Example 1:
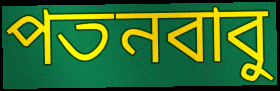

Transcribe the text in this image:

পতনবাবু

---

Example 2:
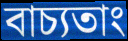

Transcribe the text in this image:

বাচ্যতাং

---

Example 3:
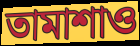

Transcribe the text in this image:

তামাশাও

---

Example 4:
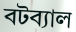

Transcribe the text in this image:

বটব্যাল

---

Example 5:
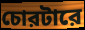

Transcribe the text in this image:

চোরটারে